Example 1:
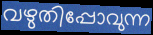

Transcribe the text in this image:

വഴുതിപ്പോവുന്ന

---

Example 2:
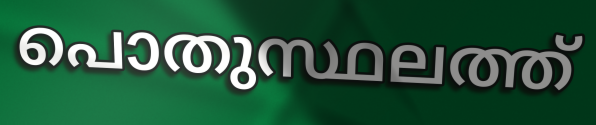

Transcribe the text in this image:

പൊതുസ്ഥലത്ത്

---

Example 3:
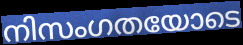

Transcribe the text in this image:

നിസംഗതയോടെ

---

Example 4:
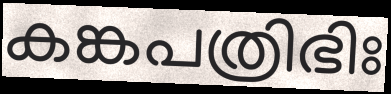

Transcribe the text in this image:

കങ്കപത്രിഭിഃ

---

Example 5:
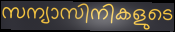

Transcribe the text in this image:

സന്യാസിനികളുടെ